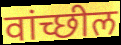
वांच्छील